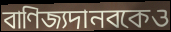
বাণিজ্যদানবকেও